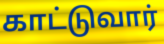
காட்டுவார்